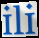
ili